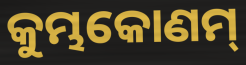
କୁମ୍ଭକୋଣମ୍